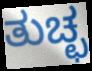
ತುಚ್ಛ